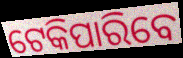
ଟେକିପାରିବେ